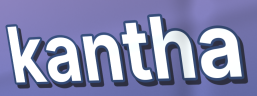
kantha